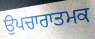
ਉਪਚਾਰਾਤਮਕ